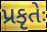
પ્રકૃતેઃ